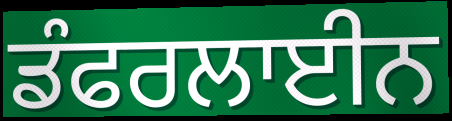
ਡੰਫਰਲਾਈਨ